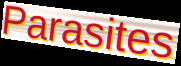
Parasites